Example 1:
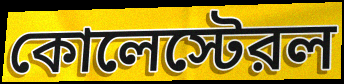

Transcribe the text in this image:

কোলেস্টেরল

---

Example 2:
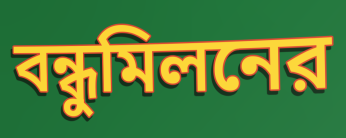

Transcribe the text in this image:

বন্ধুমিলনের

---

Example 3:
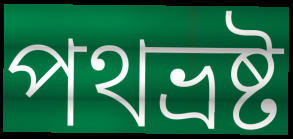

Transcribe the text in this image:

পথভ্রষ্ট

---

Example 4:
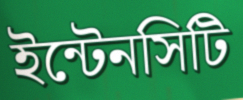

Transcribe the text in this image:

ইন্টেনসিটি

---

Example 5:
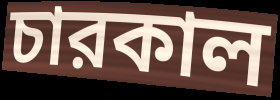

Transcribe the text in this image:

চারকাল